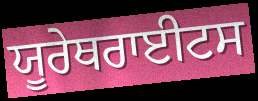
ਯੂਰੇਥਰਾਈਟਸ